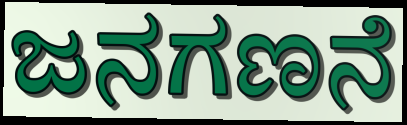
ಜನಗಣನೆ